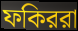
ফকিররা